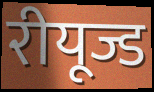
रीयूज्ड